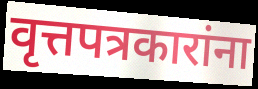
वृत्तपत्रकारांना